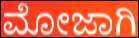
ಮೋಜಾಗಿ